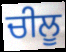
ਚੀਲੂ